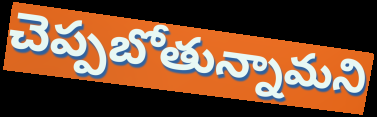
చెప్పబోతున్నామని